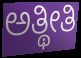
ಅತ್ಥೀತಿ